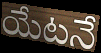
యేటనే